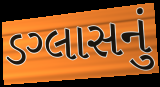
ડગ્લાસનું